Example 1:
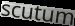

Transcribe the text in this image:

scutum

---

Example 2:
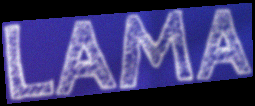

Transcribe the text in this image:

LAMA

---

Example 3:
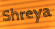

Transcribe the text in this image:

Shreya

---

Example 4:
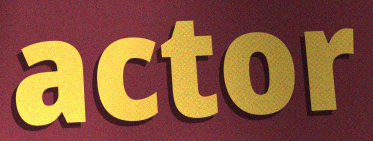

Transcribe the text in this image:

actor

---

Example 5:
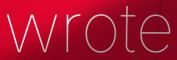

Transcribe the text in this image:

wrote